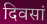
दिवसां